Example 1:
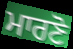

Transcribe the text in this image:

ਮਾਰਣੋ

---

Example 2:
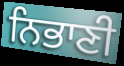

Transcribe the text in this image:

ਨਿਭਾਣੀ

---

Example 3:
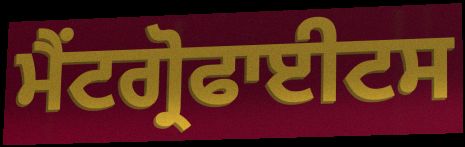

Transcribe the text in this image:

ਮੈਂਟਗ੍ਰੋਫਾਈਟਸ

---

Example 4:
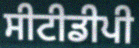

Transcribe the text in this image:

ਸੀਟੀਡੀਪੀ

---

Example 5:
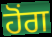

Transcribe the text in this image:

ਹੋੰਗ